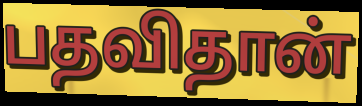
பதவிதான்